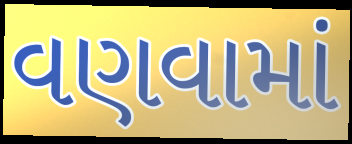
વણવામાં